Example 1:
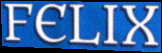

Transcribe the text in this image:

FELIX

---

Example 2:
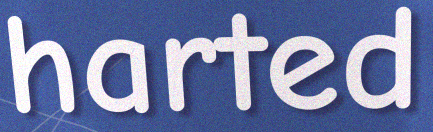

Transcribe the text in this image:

harted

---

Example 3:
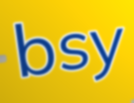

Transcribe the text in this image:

bsy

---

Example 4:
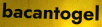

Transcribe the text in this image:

bacantogel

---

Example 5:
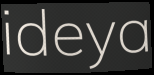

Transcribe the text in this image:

ideya